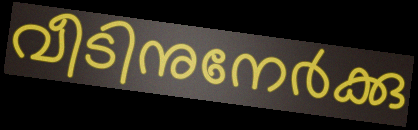
വീടിനുനേർക്കു